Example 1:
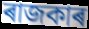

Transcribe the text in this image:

ৰাজকাৰ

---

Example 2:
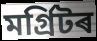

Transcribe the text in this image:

মৰ্গ্ৰিটৰ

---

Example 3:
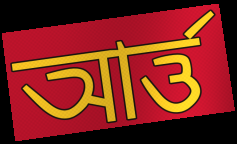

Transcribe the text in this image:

আৰ্ত্ত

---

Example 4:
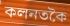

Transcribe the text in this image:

কলনতকৈ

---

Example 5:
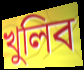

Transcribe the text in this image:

খুলিব